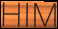
HIM